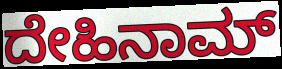
ದೇಹಿನಾಮ್